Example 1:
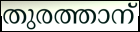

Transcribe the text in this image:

തുരത്താന്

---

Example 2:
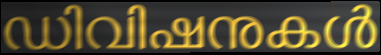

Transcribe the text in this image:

ഡിവിഷനുകൾ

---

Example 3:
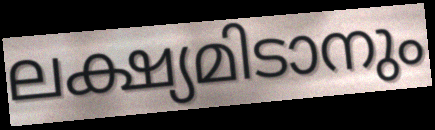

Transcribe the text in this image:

ലക്ഷ്യമിടാനും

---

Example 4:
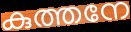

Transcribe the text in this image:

കുത്തനേ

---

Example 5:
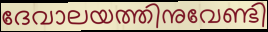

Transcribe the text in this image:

ദേവാലയത്തിനുവേണ്ടി